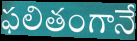
ఫలితంగానే